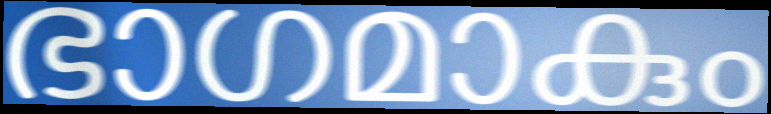
ഭാഗമാകും